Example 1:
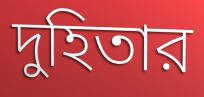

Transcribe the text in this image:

দুহিতার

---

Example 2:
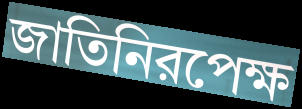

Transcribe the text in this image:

জাতিনিরপেক্ষ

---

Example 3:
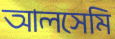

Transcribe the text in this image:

আলসেমি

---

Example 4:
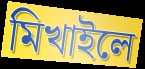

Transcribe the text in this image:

মিখাইলে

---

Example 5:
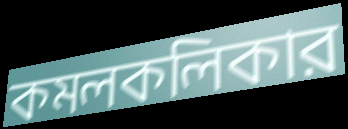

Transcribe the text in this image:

কমলকলিকার